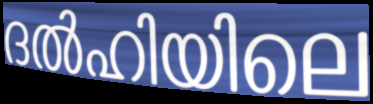
ദൽഹിയിലെ